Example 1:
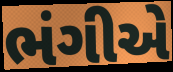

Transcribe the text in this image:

ભંગીએ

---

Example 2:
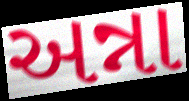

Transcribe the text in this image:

અન્ના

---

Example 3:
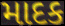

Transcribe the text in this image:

માદક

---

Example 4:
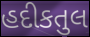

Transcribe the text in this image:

હદીકતુલ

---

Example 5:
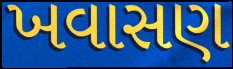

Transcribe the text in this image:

ખવાસણ